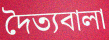
দৈত্যবালা